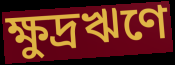
ক্ষুদ্রঋণে